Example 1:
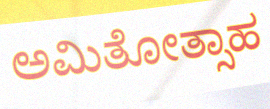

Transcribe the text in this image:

ಅಮಿತೋತ್ಸಾಹ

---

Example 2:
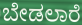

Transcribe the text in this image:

ಬೇಡಲಾರೆ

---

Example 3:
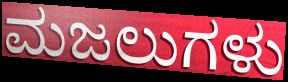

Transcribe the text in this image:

ಮಜಲುಗಳು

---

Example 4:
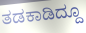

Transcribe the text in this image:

ತಡಕಾಡಿದ್ದೂ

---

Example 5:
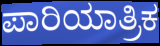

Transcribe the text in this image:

ಪಾರಿಯಾತ್ರಿಕ